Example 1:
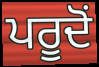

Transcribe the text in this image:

ਪਰੂਦੋਂ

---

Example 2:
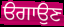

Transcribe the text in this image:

ੳਗਾਉਣ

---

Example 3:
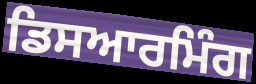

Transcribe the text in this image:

ਡਿਸਆਰਮਿੰਗ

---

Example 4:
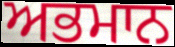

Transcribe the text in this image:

ਅਭਮਾਨ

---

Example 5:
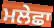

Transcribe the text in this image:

ਮਲੇਛਾ